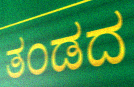
ತಂಡದ